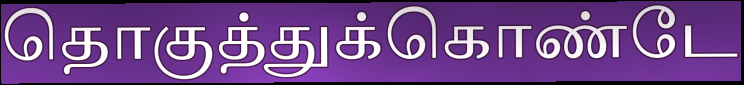
தொகுத்துக்கொண்டே